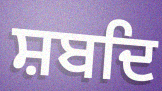
ਸ਼ਬਦਿ